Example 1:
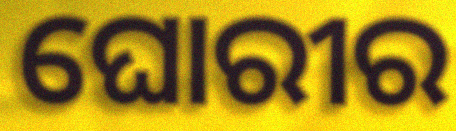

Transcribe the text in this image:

ଘୋରୀର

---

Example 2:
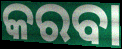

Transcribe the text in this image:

କରବା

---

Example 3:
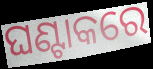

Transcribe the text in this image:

ଘଣ୍ଟାକରେ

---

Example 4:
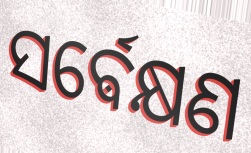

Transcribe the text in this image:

ସର୍ଵେକ୍ଷଣ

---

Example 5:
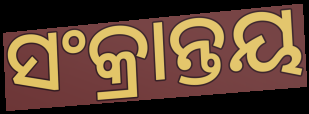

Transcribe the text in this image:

ସଂକ୍ରାନ୍ତୟ